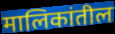
मालिकांतील